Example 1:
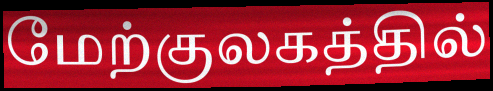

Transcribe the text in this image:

மேற்குலகத்தில்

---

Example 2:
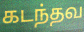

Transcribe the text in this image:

கடந்தவ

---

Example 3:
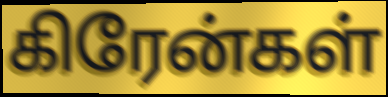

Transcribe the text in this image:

கிரேன்கள்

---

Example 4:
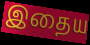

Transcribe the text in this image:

இதைய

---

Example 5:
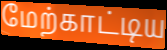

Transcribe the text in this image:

மேற்காட்டிய